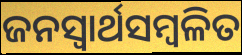
ଜନସ୍ବାର୍ଥସମ୍ବଳିତ